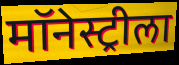
मॉनेस्ट्रीला